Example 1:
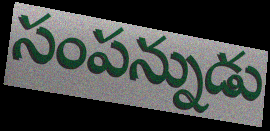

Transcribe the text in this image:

సంపన్నుడు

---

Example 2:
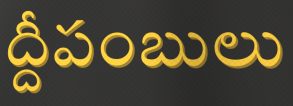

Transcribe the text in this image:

ద్దీపంబులు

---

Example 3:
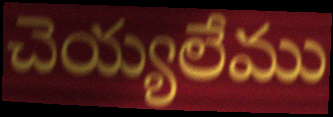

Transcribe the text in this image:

చెయ్యలేము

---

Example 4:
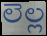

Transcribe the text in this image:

లెల్ల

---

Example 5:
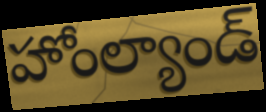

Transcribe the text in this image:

హోంల్యాండ్